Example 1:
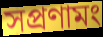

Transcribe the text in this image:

সপ্রণামং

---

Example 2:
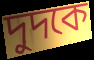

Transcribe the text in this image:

দুদকে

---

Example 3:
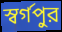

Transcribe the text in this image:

স্বর্গপুর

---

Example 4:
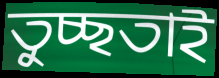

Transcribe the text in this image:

তুচ্ছতাই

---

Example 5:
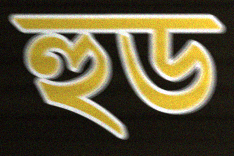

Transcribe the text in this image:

হুড